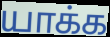
யாக்க